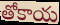
తోకాయ